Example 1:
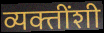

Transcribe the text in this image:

व्यक्तींशी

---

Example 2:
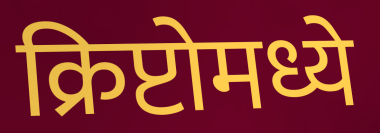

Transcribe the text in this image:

क्रिप्टोमध्ये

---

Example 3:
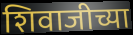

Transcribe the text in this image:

शिवाजीच्या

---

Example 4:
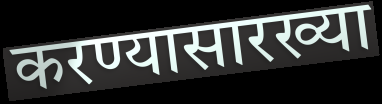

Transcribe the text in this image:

करण्यासारख्या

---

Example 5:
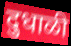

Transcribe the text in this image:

दुधाळी